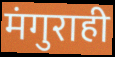
मंगुराही